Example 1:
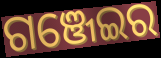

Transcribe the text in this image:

ଗଞ୍ଜେଇର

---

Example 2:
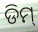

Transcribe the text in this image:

ଡିମ୍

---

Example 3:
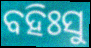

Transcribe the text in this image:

ବହିଃସୁ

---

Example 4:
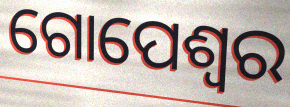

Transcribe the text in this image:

ଗୋପେଶ୍ଵର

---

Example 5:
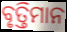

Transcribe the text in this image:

ବୃତ୍ତିମାନ